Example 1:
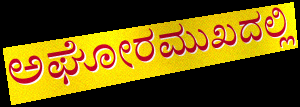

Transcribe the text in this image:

ಅಘೋರಮುಖದಲ್ಲಿ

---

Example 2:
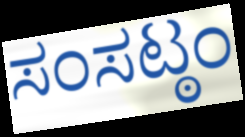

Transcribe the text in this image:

ಸಂಸಟ್ಠಂ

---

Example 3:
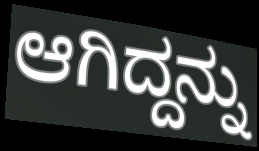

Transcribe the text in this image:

ಆಗಿದ್ದನ್ನು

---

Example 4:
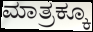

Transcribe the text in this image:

ಮಾತ್ರಕ್ಕೂ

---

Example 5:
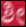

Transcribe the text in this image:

ಶೀ